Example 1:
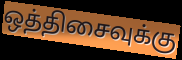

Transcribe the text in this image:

ஒத்திசைவுக்கு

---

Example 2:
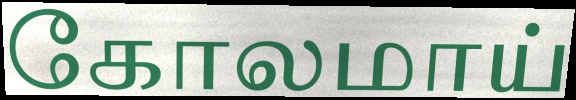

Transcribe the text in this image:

கோலமாய்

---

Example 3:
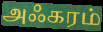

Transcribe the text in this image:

அஃகரம்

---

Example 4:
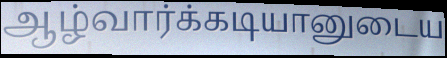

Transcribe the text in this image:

ஆழ்வார்க்கடியானுடைய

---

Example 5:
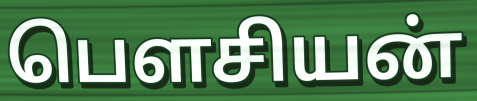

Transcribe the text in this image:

பௌசியன்